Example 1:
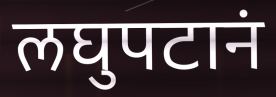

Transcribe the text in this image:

लघुपटानं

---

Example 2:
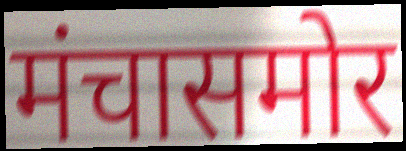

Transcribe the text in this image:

मंचासमोर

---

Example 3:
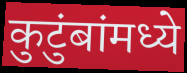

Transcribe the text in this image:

कुटुंबांमध्ये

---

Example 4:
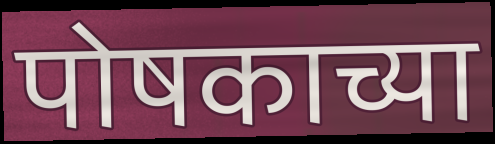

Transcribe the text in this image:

पोषकाच्या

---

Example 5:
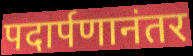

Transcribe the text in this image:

पदार्पणानंतर